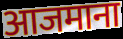
आजमाना